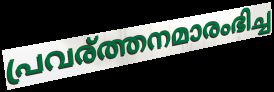
പ്രവര്ത്തനമാരംഭിച്ച